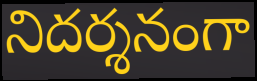
నిదర్శనంగా